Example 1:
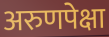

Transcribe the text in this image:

अरुणपेक्षा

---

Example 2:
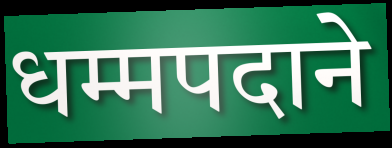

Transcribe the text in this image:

धम्मपदाने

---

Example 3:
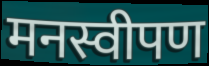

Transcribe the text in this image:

मनस्वीपण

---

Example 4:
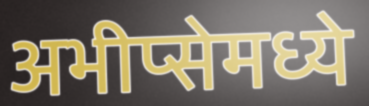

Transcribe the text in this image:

अभीप्सेमध्ये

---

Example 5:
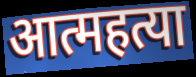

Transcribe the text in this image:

आत्महत्या